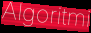
Algoritmi